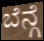
ಬೆನ್ಗೆ